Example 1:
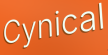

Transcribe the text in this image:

Cynical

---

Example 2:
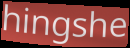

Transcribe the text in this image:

hingshe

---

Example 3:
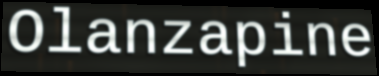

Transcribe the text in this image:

Olanzapine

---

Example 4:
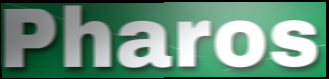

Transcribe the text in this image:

Pharos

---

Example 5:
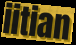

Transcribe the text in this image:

iitian